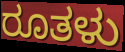
ರೂತಳು